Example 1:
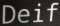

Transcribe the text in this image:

Deif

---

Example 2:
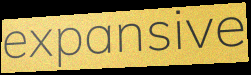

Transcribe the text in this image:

expansive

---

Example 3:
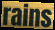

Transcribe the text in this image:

rains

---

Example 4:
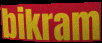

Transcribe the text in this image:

bikram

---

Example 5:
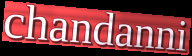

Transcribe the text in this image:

chandanni